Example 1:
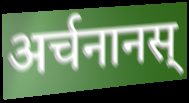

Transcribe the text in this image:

अर्चनानस्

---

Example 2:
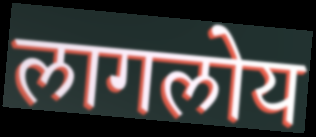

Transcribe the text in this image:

लागलोय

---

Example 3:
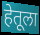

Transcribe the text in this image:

हेतूला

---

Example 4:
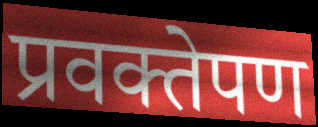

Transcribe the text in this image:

प्रवक्तेपण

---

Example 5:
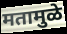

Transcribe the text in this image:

मतामुळे